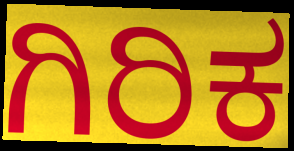
ಗಿರಿಕ